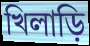
খিলাড়ি